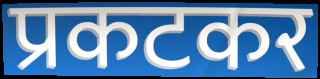
प्रकटकर